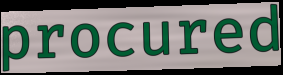
procured